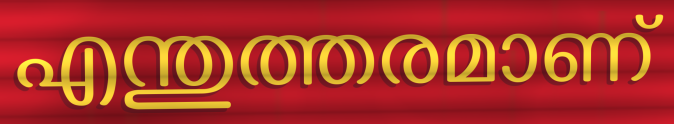
എന്തുത്തരമാണ്